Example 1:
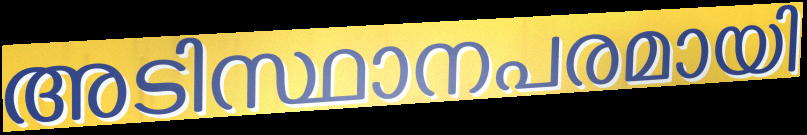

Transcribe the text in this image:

അടിസ്ഥാനപരമായി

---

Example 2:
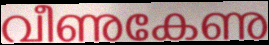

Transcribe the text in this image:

വീണുകേണു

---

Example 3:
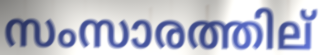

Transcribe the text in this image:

സംസാരത്തില്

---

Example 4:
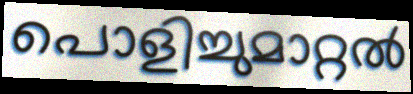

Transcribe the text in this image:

പൊളിച്ചുമാറ്റൽ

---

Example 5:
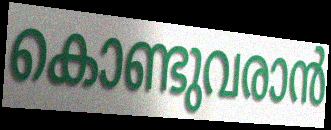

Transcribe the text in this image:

കൊണ്ടുവരാൻ